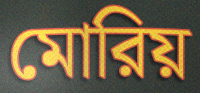
মোরিয়